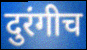
दुरंगीच